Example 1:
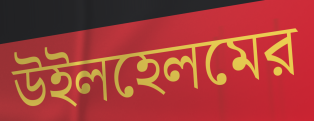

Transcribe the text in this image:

উইলহেলমের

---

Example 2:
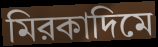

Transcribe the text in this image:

মিরকাদিমে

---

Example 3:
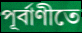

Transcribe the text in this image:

পূর্বাণীতে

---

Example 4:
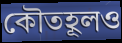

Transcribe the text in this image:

কৌতহূলও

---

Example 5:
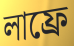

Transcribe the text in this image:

লাফ্রে